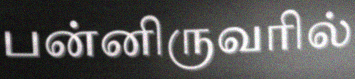
பன்னிருவரில்